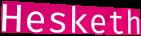
Hesketh